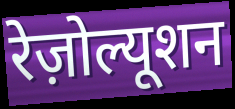
रेज़ोल्यूशन